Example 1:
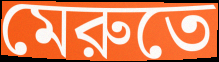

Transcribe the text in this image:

মেরুতে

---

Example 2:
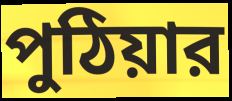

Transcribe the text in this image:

পুঠিয়ার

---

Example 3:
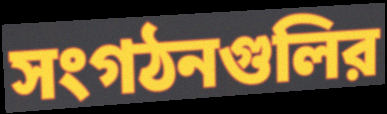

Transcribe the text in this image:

সংগঠনগুলির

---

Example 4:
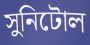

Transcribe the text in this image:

সুনিটোল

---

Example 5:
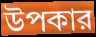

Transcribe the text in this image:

উপকার